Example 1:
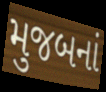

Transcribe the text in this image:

મુજબનાં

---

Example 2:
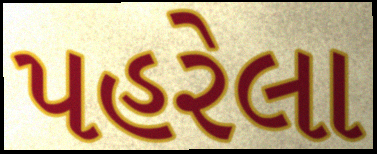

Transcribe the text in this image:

પહરેલા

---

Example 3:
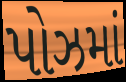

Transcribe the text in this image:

પોઝમાં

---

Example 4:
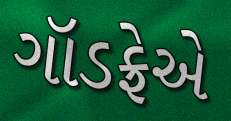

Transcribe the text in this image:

ગૉડફ્રેએ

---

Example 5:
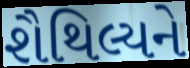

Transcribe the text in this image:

શૈથિલ્યને